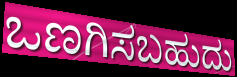
ಒಣಗಿಸಬಹುದು